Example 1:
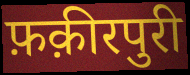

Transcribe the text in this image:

फ़क़ीरपुरी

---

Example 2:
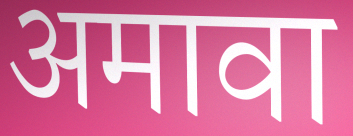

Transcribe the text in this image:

अमावा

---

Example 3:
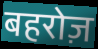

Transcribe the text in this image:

बहरोज़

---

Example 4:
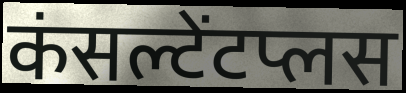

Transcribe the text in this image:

कंसल्टेंटप्लस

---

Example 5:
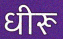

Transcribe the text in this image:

धीरू